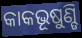
କାକଭୂଷୁଣ୍ଡି